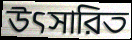
উৎসারিত